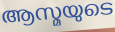
ആസ്മയുടെ